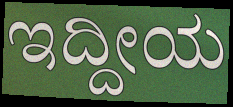
ಇದ್ದೀಯ